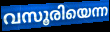
വസൂരിയെന്ന